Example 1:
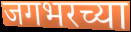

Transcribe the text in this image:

जगभरच्या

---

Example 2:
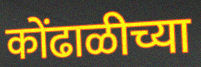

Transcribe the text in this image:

कोंढाळीच्या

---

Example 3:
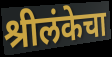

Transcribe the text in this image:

श्रीलंकेचा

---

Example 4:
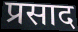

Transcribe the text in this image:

प्रसाद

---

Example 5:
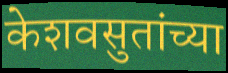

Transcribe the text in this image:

केशवसुतांच्या